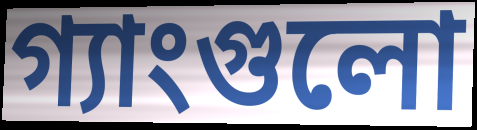
গ্যাংগুলো